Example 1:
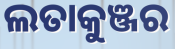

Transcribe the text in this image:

ଲତାକୁଞ୍ଜର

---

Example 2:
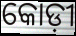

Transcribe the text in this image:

କୋଡ଼ୀ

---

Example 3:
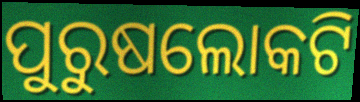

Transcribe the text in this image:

ପୁରୁଷଲୋକଟି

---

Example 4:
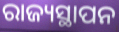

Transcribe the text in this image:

ରାଜ୍ୟସ୍ଥାପନ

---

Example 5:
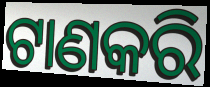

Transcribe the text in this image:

ଟାଣକରି